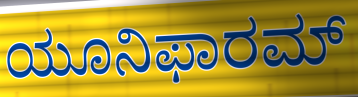
ಯೂನಿಫಾರಮ್